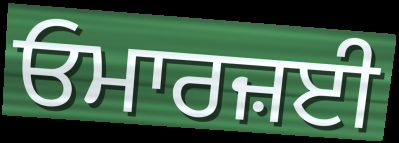
ਓਮਾਰਜ਼ਈ